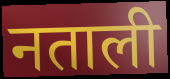
नताली